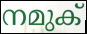
നമുക്